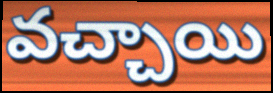
వచ్చాయి